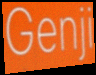
Genji